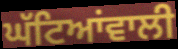
ਘੱਟਿਆਂਵਾਲੀ